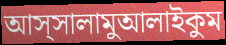
আস্সালামুআলাইকুম